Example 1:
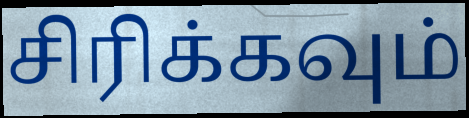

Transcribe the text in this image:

சிரிக்கவும்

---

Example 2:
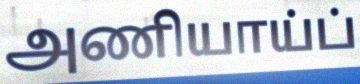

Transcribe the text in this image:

அணியாய்ப்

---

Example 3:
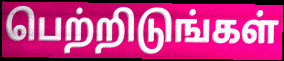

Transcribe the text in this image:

பெற்றிடுங்கள்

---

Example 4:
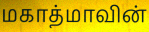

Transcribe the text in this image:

மகாத்மாவின்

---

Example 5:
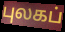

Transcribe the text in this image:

புலகப்